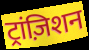
ट्रांज़िशन